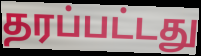
தரப்பட்டது